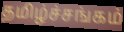
தமிழ்ச்சங்கம்